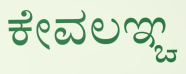
ಕೇವಲಞ್ಚ